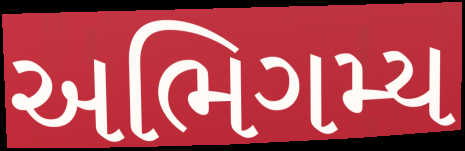
અભિગમ્ય